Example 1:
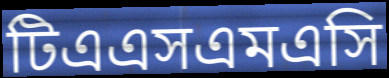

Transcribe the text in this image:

টিএএসএমএসি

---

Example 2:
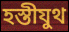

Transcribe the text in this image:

হস্তীযুথ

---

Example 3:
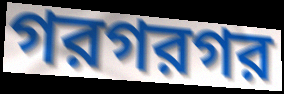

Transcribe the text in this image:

গরগরগর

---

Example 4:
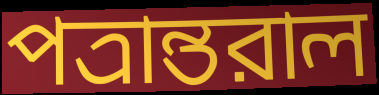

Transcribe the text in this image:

পত্রান্তরাল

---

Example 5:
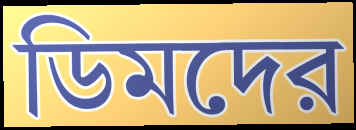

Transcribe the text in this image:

ডিমদের